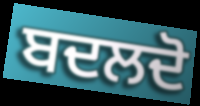
ਬਦਲਦੋ